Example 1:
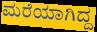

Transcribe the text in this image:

ಮರೆಯಾಗಿದ್ದ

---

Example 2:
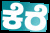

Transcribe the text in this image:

ಕೆರೆ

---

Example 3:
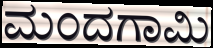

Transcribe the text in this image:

ಮಂದಗಾಮಿ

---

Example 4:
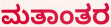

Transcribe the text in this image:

ಮತಾಂತರ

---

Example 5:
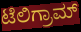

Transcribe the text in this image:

ಟೆಲಿಗ್ರಾಮ್